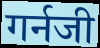
गर्नजी